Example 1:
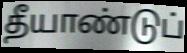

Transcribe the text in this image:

தீயாண்டுப்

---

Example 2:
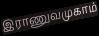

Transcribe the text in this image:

இராணுவமுகாம்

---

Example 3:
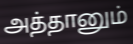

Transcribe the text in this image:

அத்தானும்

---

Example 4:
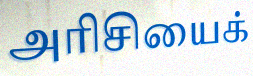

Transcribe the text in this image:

அரிசியைக்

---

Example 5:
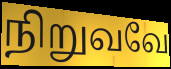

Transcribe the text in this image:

நிறுவவே